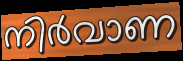
നിർവാണ